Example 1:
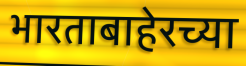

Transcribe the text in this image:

भारताबाहेरच्या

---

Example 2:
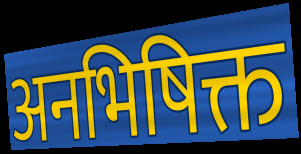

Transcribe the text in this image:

अनभिषिक्त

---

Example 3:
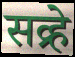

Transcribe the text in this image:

सव्र्हे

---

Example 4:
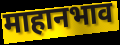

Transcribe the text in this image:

माहानभाव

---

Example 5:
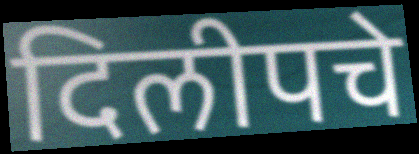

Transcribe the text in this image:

दिलीपचे